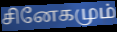
சினேகமும்